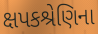
ક્ષપકશ્રેણિના